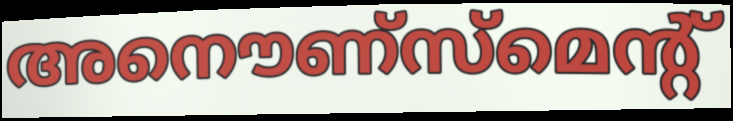
അനൌണ്സ്മെന്റ്